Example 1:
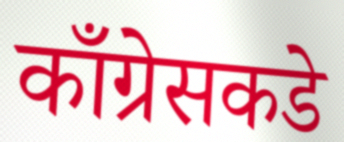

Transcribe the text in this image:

काँग्रेसकडे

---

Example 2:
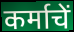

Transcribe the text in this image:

कर्माचें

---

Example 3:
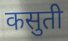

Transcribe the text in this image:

कसुती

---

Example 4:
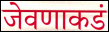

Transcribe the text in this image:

जेवणाकडं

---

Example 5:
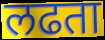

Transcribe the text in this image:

लढता